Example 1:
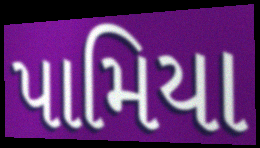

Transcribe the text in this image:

પામિયા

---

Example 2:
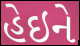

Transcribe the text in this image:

હેઇને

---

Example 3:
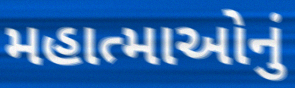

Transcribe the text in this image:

મહાત્માઓનું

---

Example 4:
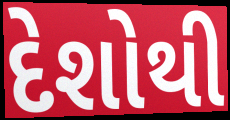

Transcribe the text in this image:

દેશોથી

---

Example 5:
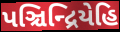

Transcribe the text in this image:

પઞ્ચિન્દ્રિયેહિ